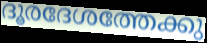
ദൂരദേശത്തേക്കു